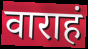
वाराहं